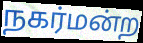
நகர்மன்ற